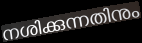
നശിക്കുന്നതിനും